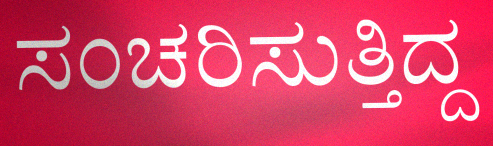
ಸಂಚರಿಸುತ್ತಿದ್ದ